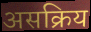
असक्रिय